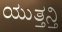
ಯುತ್ತನ್ತಿ